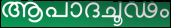
ആപാദചൂഢം